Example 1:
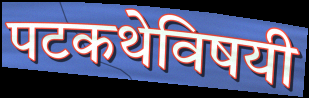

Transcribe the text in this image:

पटकथेविषयी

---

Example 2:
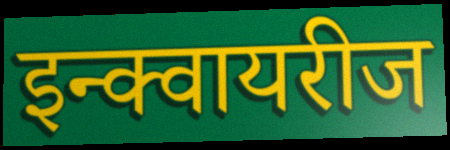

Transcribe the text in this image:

इन्क्वायरीज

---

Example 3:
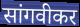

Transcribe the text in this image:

सांगवीकर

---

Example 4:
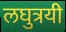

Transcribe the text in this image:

लघुत्रयी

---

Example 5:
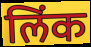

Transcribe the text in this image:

लिंक